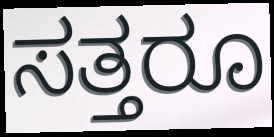
ಸತ್ತರೂ